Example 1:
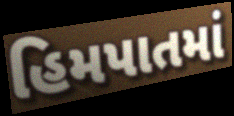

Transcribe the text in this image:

હિમપાતમાં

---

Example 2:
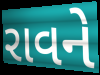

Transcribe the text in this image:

રાવને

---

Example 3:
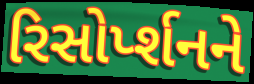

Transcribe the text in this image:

રિસોર્પ્શનને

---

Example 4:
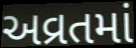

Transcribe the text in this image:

અવ્રતમાં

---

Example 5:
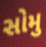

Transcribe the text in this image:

સોમુ